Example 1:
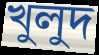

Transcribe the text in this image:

খুলুদ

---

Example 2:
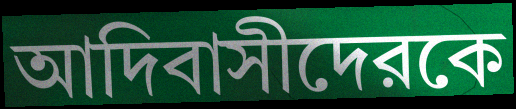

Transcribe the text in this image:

আদিবাসীদেরকে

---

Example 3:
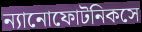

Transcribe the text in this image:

ন্যানোফোটনিকসে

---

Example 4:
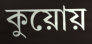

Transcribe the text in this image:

কুয়োয়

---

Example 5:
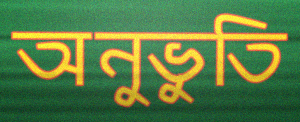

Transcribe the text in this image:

অনুভুতি